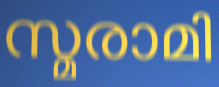
സ്മരാമി